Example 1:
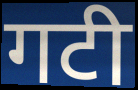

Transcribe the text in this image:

गटी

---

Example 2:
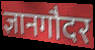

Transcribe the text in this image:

ज्ञानगौदर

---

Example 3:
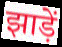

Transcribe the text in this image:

झाड़ें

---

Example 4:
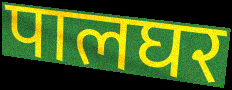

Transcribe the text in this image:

पालघर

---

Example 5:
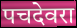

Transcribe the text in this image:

पचदेवरा